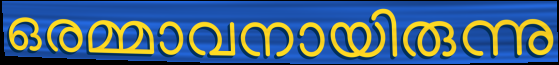
ഒരമ്മാവനായിരുന്നു